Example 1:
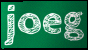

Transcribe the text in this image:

joeg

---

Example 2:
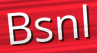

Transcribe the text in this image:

Bsnl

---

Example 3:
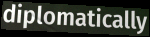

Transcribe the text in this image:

diplomatically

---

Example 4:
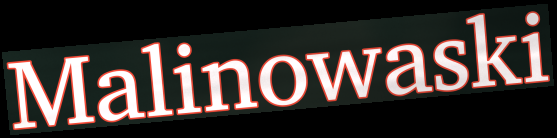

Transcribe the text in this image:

Malinowaski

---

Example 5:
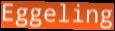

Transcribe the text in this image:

Eggeling